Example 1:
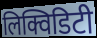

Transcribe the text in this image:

लिक्विडिटी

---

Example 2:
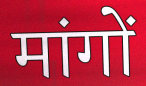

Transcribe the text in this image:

मांगों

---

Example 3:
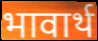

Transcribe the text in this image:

भावार्थ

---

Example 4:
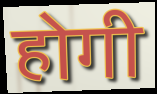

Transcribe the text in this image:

होगी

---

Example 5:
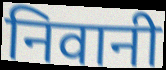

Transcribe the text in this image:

निवानी